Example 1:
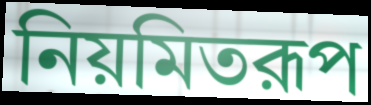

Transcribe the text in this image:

নিয়মিতরূপ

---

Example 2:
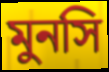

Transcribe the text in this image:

মুনসি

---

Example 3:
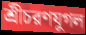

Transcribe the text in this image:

শ্রীচরণযুগল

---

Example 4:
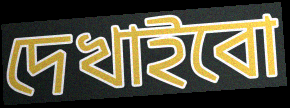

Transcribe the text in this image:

দেখাইবো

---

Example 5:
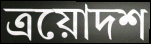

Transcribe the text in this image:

ত্রয়োদশ